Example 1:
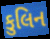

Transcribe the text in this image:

કુલિન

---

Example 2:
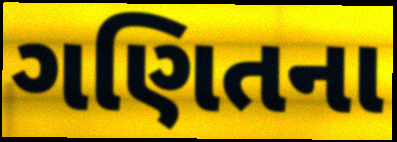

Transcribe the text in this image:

ગણિતના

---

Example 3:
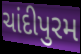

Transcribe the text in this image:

ચાંદીપુરમ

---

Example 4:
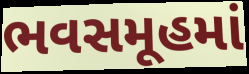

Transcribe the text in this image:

ભવસમૂહમાં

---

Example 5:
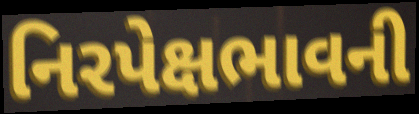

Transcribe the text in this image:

નિરપેક્ષભાવની